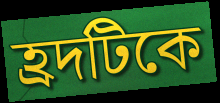
হ্রদটিকে